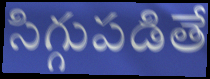
సిగ్గుపడితే